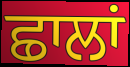
ਛਾਲਾਂ